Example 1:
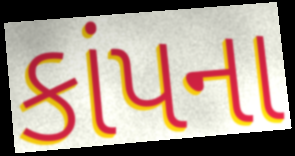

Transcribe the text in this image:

કાંપના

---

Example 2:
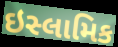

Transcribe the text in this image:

ઇસ્લામિક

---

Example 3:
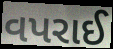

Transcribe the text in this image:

વપરાઈ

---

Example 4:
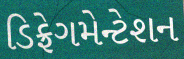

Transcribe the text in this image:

ડિફ્રેગમેન્ટેશન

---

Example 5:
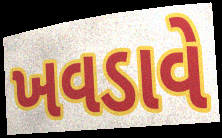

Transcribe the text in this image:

ખવડાવે